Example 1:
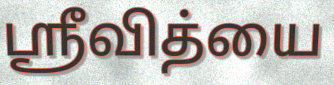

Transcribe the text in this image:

ஸ்ரீவித்யை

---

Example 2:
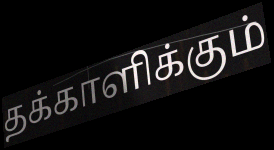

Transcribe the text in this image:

தக்காளிக்கும்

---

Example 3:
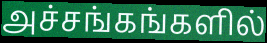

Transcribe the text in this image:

அச்சங்கங்களில்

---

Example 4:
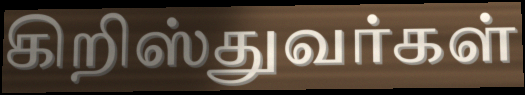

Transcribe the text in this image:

கிறிஸ்துவர்கள்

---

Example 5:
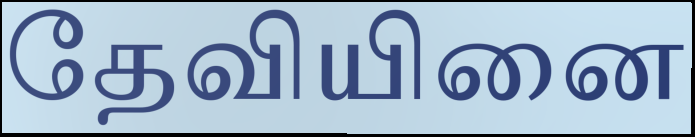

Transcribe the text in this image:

தேவியினை